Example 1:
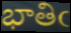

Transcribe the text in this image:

భాతిఁ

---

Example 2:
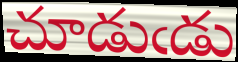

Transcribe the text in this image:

చూడుఁడు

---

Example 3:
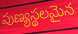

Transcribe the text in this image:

పుణ్యస్థలమైన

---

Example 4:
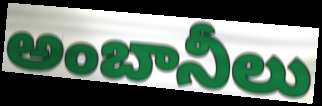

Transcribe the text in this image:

అంబానీలు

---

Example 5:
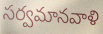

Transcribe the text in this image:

సర్వమానవాళి